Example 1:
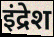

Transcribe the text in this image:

इंद्रेश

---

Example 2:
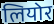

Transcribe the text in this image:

लियोर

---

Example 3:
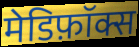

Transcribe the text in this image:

मेडिफ़ॉक्स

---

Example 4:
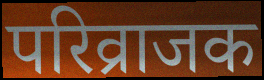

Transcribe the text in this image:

परिव्राजक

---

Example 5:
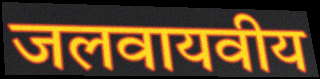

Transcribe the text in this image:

जलवायवीय